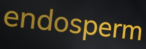
endosperm